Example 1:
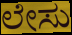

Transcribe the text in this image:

ಲೇಸು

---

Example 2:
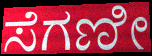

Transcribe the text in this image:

ಸೆಗಣೀ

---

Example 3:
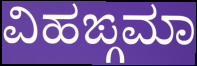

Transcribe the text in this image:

ವಿಹಙ್ಗಮಾ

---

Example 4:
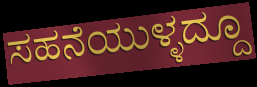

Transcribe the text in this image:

ಸಹನೆಯುಳ್ಳದ್ದೂ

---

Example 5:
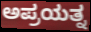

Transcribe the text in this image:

ಅಪ್ರಯತ್ನ